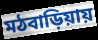
মঠবাড়িয়ায়